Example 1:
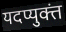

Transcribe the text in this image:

यदप्युक्तं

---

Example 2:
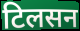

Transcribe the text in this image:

टिलसन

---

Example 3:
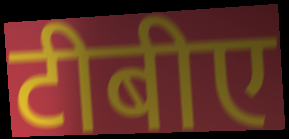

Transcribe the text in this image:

टीबीए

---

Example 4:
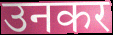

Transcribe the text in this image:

उनकर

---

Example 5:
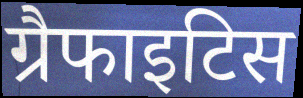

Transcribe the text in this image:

ग्रैफाइटिस